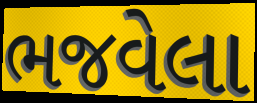
ભજવેલા